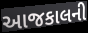
આજકાલની